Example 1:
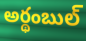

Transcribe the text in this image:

అర్థంబుల్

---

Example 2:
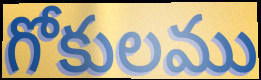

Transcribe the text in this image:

గోకులము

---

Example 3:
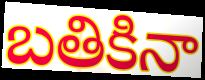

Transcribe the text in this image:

బతికినా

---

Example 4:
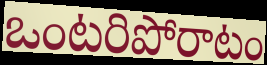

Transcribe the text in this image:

ఒంటరిపోరాటం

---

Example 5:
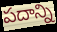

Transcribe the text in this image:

పదాన్ని